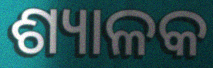
ଶ୍ୟାଳକ